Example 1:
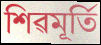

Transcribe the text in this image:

শিৱমূৰ্তি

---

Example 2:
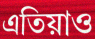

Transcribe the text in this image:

এতিয়াও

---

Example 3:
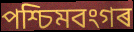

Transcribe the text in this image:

পশ্চিমবংগৰ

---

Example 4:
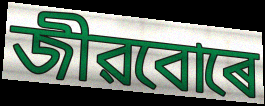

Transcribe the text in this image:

জীৱবোৰে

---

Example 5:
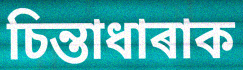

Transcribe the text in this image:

চিন্তাধাৰাক